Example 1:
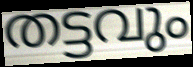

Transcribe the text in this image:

തട്ടവും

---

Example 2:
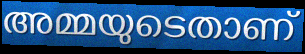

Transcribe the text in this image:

അമ്മയുടെതാണ്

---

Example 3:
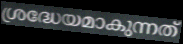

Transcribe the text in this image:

ശ്രദ്ധേയമാകുന്നത്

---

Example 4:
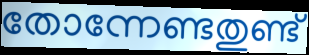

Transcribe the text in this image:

തോന്നേണ്ടതുണ്ട്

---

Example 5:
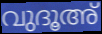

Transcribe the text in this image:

വുദൂഅ്